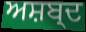
ਅਸ਼ਬ੍ਦ